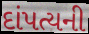
દાંપત્યની